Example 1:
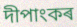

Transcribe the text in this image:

দীপাংকৰ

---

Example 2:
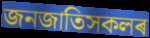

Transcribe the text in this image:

জনজাতিসকলৰ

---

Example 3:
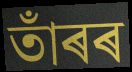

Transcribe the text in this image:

তাঁৰৰ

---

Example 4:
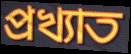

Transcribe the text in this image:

প্ৰখ্যাত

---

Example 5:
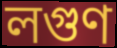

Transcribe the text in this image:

লগুণ